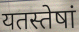
यतस्तेषां